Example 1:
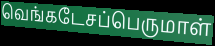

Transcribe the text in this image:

வெங்கடேசப்பெருமாள்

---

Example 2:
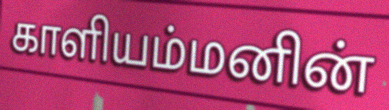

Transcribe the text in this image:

காளியம்மனின்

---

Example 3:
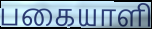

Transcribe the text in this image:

பகையாளி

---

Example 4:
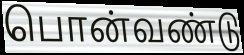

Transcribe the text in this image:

பொன்வண்டு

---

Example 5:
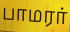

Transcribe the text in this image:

பாமரர்